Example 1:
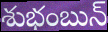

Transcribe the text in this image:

శుభంబున్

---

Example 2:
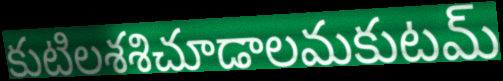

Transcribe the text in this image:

కుటిలశశిచూడాలమకుటమ్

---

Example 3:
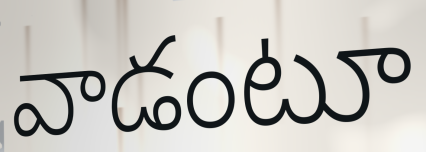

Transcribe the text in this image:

వాడంటూ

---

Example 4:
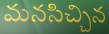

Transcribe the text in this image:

మనసిచ్చిన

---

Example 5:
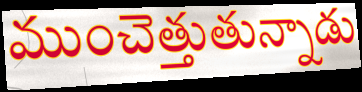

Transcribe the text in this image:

ముంచెత్తుతున్నాడు